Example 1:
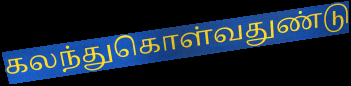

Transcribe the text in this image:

கலந்துகொள்வதுண்டு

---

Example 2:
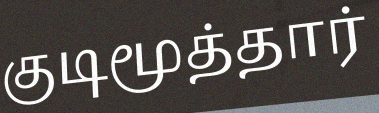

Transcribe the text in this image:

குடிமூத்தார்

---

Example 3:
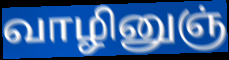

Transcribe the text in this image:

வாழினுஞ்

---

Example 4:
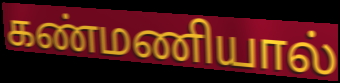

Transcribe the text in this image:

கண்மணியால்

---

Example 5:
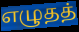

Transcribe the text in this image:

எழுதத்